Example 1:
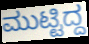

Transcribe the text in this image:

ಮುಟ್ಟಿದ್ದ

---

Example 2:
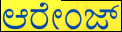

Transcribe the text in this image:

ಆರೇಂಜ್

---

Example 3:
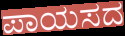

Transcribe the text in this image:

ಪಾಯಸದ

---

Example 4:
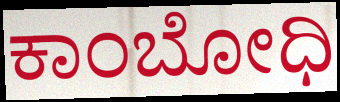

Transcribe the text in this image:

ಕಾಂಬೋಧಿ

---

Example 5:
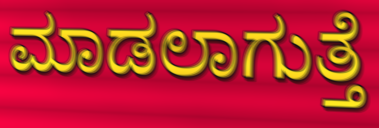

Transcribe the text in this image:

ಮಾಡಲಾಗುತ್ತೆ